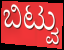
ಬಿಟ್ವು